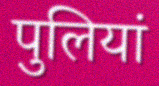
पुलियां